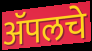
ॲपलचे